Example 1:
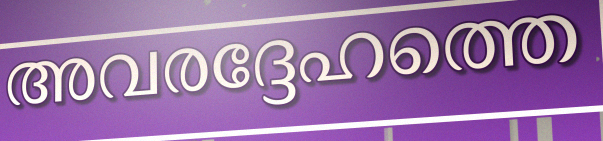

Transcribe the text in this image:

അവരദ്ദേഹത്തെ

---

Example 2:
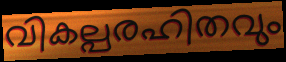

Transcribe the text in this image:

വികല്പരഹിതവും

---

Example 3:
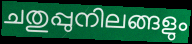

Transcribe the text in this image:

ചതുപ്പുനിലങ്ങളും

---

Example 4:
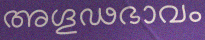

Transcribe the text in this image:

അഗൂഢഭാവം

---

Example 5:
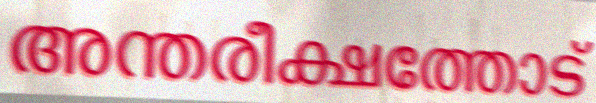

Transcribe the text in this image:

അന്തരീക്ഷത്തോട്